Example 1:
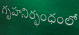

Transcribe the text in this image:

గృహనిర్భంధంలో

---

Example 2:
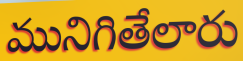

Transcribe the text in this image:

మునిగితేలారు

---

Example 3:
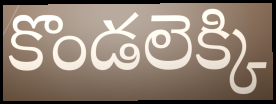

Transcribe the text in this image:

కొండలెక్కి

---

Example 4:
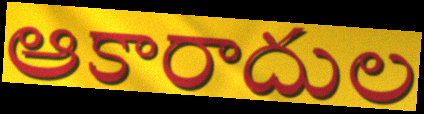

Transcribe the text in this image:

ఆకారాదుల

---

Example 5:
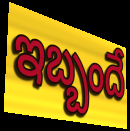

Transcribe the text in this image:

ఇబ్బందే